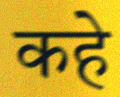
कहे